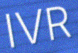
IVR